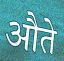
औते